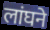
लांघने